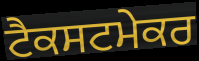
ਟੈਕਸਟਮੇਕਰ